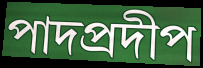
পাদপ্রদীপ